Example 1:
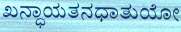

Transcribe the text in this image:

ಖನ್ಧಾಯತನಧಾತುಯೋ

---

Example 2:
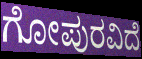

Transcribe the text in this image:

ಗೋಪುರವಿದೆ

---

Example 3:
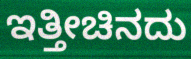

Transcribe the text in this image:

ಇತ್ತೀಚಿನದು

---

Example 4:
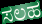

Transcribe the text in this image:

ಸಲಹ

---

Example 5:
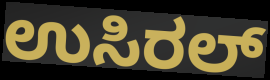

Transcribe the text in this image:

ಉಸಿರಲ್